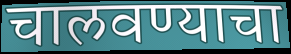
चालवण्याचा